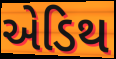
એડિથ